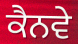
ਕੈਨਵੇ